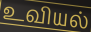
உவியல்